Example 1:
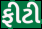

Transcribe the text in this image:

ફીટી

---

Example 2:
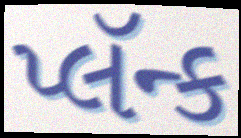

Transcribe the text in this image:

પ્લૅન્ક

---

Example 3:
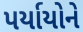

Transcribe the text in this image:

પર્યાયોને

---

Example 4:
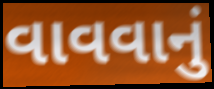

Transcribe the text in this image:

વાવવાનું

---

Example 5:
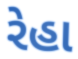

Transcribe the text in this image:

રેહા